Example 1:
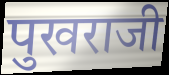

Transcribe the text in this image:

पुखराजी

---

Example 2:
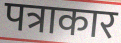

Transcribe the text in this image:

पत्राकार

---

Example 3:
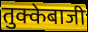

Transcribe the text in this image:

तुक्केबाजी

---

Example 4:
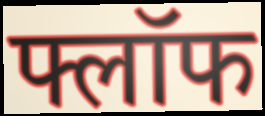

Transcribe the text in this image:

फ्लॉफ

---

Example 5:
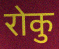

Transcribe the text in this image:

रोकु